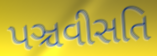
પઞ્ચવીસતિ